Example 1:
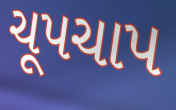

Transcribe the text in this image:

ચૂપચાપ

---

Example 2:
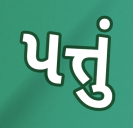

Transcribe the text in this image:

પત્તું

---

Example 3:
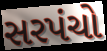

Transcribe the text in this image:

સરપંચો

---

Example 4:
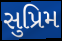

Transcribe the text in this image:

સુપ્રિમ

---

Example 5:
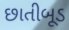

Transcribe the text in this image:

છાતીબૂડ